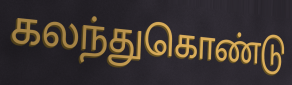
கலந்துகொண்டு